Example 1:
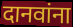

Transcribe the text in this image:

दानवांना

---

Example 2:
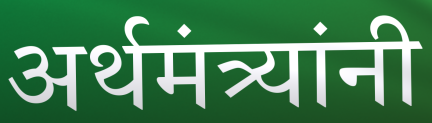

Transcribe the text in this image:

अर्थमंत्र्यांनी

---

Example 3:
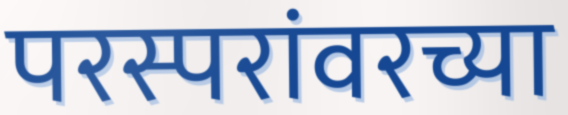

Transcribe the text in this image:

परस्परांवरच्या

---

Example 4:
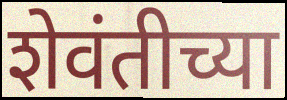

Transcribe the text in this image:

शेवंतीच्या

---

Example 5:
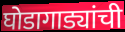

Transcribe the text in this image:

घोडागाड्यांची